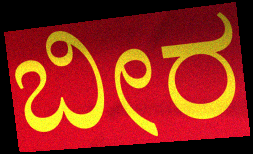
ಬೀರ